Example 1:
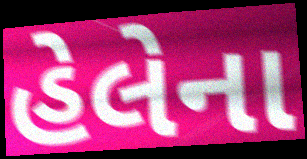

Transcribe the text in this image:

હેલેના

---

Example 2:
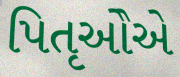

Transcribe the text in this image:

પિતૃઓેએ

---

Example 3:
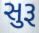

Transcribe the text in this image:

સુરૂ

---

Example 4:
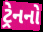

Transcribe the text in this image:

ટ્રેનનો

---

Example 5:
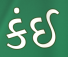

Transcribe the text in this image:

કંઈ